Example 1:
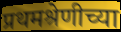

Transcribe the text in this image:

प्रथमश्रेणीच्या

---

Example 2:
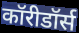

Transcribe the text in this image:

कॉरीडॉर्स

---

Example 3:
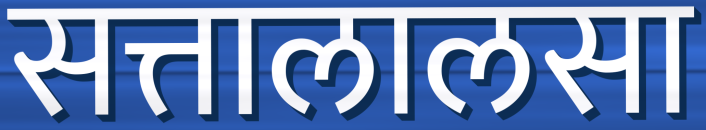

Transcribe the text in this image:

सत्तालालसा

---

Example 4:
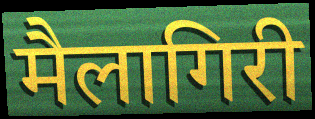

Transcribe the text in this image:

मैलागिरी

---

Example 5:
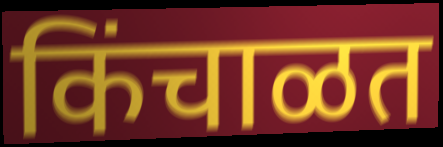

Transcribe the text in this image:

किंचाळत